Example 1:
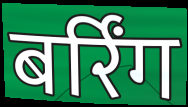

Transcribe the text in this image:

बर्रिंग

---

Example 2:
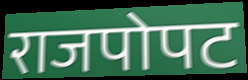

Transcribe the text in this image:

राजपोपट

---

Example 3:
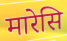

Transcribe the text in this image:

मारेसि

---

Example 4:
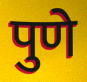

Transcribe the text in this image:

पुणे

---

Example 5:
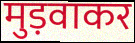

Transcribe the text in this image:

मुड़वाकर